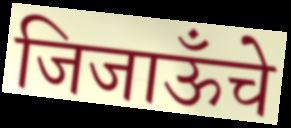
जिजाऊँचे